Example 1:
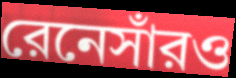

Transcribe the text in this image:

রেনেসাঁরও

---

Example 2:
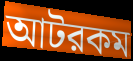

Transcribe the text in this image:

আটরকম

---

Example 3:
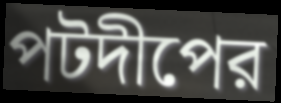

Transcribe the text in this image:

পটদীপের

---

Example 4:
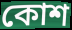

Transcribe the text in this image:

কোশ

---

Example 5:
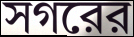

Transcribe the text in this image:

সগরের